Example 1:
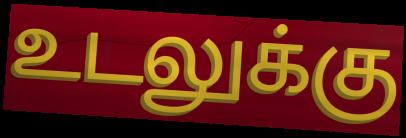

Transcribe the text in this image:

உடலுக்கு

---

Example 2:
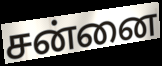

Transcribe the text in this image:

சன்னை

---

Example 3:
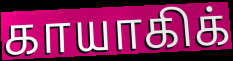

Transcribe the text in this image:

காயாகிக்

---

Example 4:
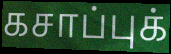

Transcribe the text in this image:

கசாப்புக்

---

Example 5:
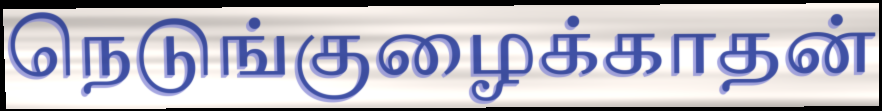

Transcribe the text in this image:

நெடுங்குழைக்காதன்